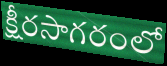
క్షీరసాగరంలో